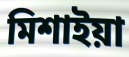
মিশাইয়া